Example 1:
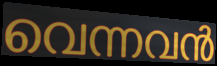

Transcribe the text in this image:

വെന്നവൻ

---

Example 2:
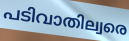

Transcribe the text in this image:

പടിവാതില്വരെ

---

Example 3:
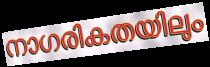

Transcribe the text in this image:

നാഗരികതയിലും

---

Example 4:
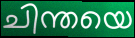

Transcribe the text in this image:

ചിന്തയെ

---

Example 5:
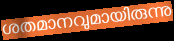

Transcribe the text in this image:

ശതമാനവുമായിരുന്നു